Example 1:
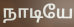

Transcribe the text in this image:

நாடியே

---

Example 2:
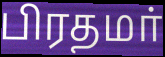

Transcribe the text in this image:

பிரதமர்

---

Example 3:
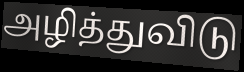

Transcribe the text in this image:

அழித்துவிடு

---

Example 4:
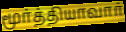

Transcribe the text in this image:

மூர்த்தியாவார்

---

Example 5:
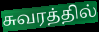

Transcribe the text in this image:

சுவரத்தில்